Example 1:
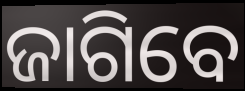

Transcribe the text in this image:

ଜାଗିବେ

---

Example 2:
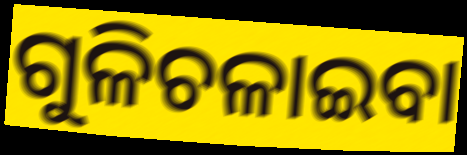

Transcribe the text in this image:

ଗୁଳିଚଳାଇବା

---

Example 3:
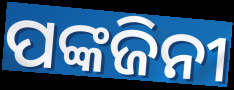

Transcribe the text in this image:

ପଙ୍କଜିନୀ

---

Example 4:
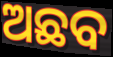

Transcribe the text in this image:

ଅଛବ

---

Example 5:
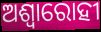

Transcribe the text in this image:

ଅଶ୍ଵାରୋହୀ